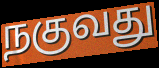
நகுவது